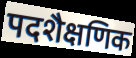
पदशैक्षणिक